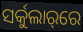
ସର୍କୁଲାର୍‌ରେ